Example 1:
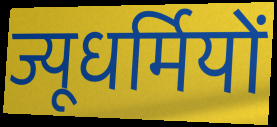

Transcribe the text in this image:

ज्यूधर्मियों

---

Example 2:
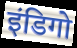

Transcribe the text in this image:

इंडिगो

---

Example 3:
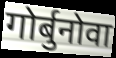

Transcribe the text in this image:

गोर्बुनोवा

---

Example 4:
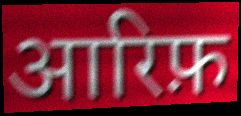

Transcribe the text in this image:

आरिफ़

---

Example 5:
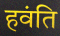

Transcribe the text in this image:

हवंति